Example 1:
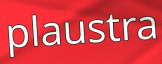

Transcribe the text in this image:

plaustra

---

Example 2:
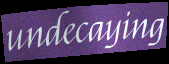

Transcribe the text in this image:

undecaying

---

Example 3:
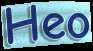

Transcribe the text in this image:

Heo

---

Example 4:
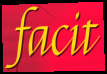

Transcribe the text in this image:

facit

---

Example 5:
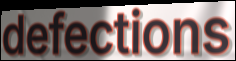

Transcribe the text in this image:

defections